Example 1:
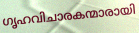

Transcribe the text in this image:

ഗൃഹവിചാരകന്മാരായി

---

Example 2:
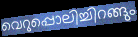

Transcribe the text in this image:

വെറുപ്പൊലിച്ചിറങ്ങും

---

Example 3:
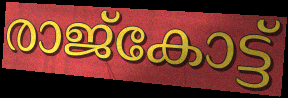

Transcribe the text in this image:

രാജ്കോട്ട്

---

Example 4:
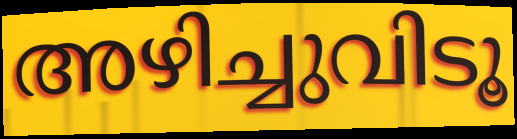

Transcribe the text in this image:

അഴിച്ചുവിടൂ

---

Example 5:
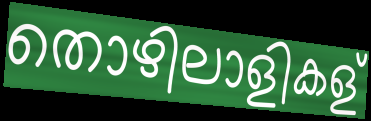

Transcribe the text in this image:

തൊഴിലാളികള്